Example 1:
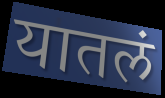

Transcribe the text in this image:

यातलं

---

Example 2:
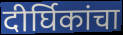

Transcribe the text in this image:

दीर्घिकांचा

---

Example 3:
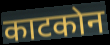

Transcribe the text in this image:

काटकोन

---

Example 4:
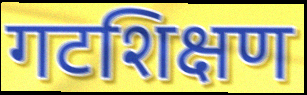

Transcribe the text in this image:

गटशिक्षण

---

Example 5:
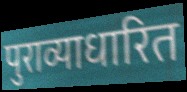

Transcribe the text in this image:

पुराव्याधारित